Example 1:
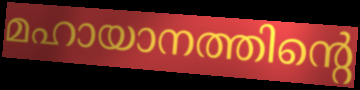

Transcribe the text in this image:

മഹായാനത്തിന്റെ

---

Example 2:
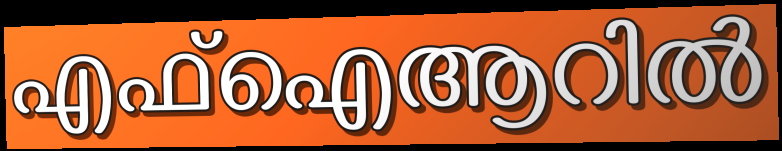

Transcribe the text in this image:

എഫ്ഐആറിൽ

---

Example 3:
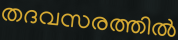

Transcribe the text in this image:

തദവസരത്തിൽ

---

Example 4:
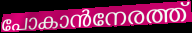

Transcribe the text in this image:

പോകാൻനേരത്ത്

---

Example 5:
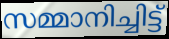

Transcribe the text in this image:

സമ്മാനിച്ചിട്ട്